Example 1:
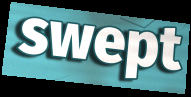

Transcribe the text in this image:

swept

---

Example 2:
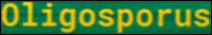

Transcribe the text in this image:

Oligosporus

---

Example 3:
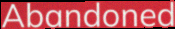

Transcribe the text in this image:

Abandoned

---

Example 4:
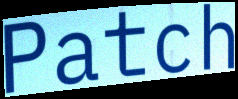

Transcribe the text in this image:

Patch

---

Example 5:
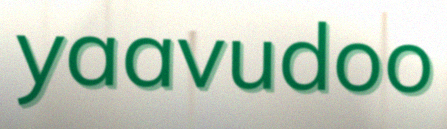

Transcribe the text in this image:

yaavudoo